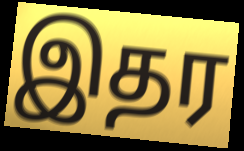
இதர